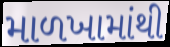
માળખામાંથી